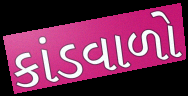
કાંડવાળો